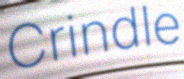
Crindle